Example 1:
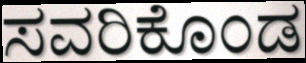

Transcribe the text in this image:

ಸವರಿಕೊಂಡ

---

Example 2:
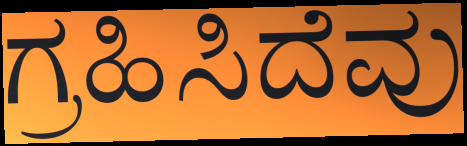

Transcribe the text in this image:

ಗ್ರಹಿಸಿದೆವು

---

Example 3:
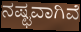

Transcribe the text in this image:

ನಷ್ಟವಾಗಿವೆ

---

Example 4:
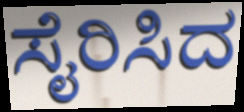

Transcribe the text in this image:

ಸೈರಿಸಿದ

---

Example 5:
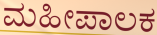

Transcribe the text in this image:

ಮಹೀಪಾಲಕ